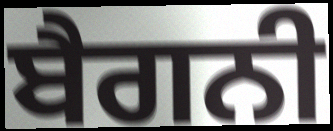
ਬੈਗਨੀ